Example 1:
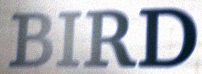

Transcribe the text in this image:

BIRD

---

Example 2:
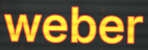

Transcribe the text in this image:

weber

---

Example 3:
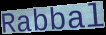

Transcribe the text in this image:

Rabbal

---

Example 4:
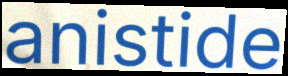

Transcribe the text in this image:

anistide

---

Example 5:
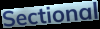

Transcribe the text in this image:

Sectional